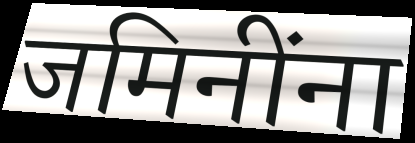
जमिनींना